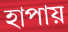
হাপায়